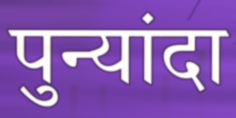
पुन्यांदा